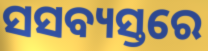
ସସବ୍ୟସ୍ତରେ